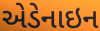
એડેનાઇન